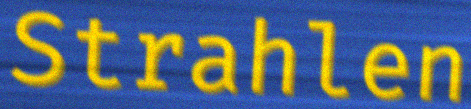
Strahlen